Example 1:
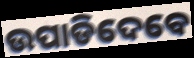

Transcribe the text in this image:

ଉପାଡିଦେବେ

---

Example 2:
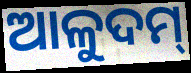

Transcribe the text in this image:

ଆଳୁଦମ୍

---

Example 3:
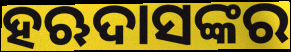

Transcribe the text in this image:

ହଋଦାସଙ୍କର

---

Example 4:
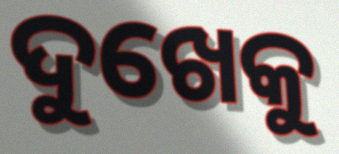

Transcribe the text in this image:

ଦୁଖେକୁ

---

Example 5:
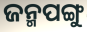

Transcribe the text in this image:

ଜନ୍ମପଙ୍ଗୁ